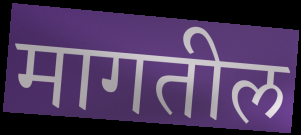
मागतील